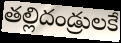
తల్లిదండ్రులకే